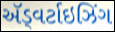
ઍડ્વર્ટાઇઝિંગ